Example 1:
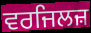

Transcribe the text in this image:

ਵਰਜਿਲਜ਼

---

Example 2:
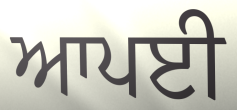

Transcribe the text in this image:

ਆਪਈ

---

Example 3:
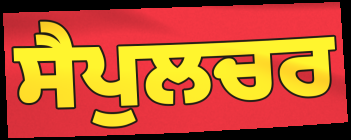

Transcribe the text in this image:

ਸੈਪੁਲਚਰ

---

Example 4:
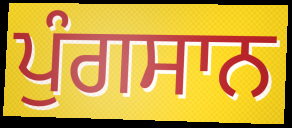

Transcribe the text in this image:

ਪੁੰਗਸਾਨ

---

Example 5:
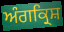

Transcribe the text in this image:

ਅੰਗਕ੍ਰਿਸ਼